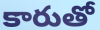
కారుతో